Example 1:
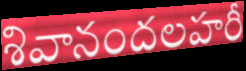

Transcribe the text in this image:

శివానందలహరీ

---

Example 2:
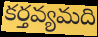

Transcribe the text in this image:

కర్తవ్యమది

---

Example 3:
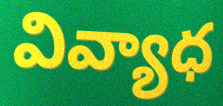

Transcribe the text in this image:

వివ్యాధ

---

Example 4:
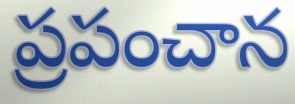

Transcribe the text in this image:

ప్రపంచాన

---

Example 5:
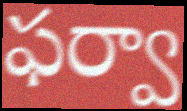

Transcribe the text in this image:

ఫర్వా